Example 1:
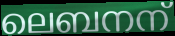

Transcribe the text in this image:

ലെബനന്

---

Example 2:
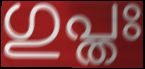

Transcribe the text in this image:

ഗുപ്തഃ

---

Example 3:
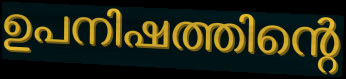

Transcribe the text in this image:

ഉപനിഷത്തിന്റെ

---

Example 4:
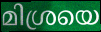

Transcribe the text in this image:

മിശ്രയെ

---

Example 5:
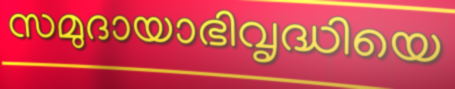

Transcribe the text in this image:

സമുദായാഭിവൃദ്ധിയെ